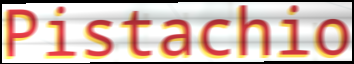
Pistachio